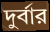
দুর্বার